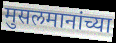
मुसलमानांच्या